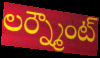
లర్న్మౌంట్